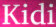
Kidi